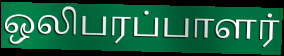
ஒலிபரப்பாளர்